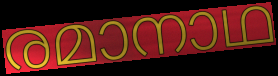
രമാനാഥ